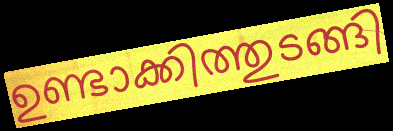
ഉണ്ടാക്കിത്തുടങ്ങി